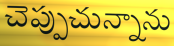
చెప్పుచున్నాను